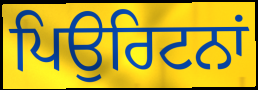
ਪਿਉਰਿਟਨਾਂ